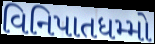
વિનિપાતધમ્મો